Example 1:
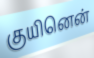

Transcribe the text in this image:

குயினென்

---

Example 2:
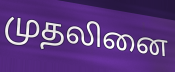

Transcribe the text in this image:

முதலினை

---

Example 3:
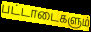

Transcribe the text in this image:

பட்டாடைகளும்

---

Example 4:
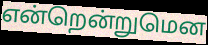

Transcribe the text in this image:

என்றென்றுமென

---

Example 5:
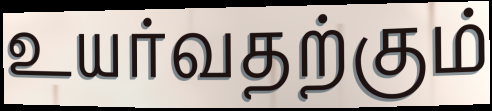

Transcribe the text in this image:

உயர்வதற்கும்